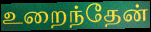
உறைந்தேன்